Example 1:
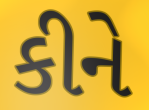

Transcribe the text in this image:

કીને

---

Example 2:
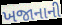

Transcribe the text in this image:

ખજાનાની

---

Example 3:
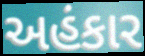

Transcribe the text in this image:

અહંકાર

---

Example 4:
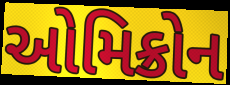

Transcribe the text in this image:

ઓમિક્રોન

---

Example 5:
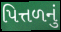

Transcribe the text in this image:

પિત્તળનું